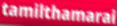
tamilthamarai